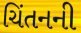
ચિંતનની